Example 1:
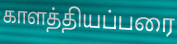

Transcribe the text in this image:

காளத்தியப்பரை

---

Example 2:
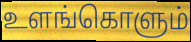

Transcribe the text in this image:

உளங்கொளும்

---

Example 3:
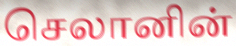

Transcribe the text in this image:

செலானின்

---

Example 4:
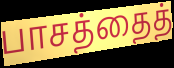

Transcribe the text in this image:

பாசத்தைத்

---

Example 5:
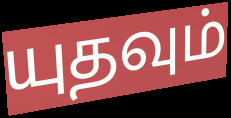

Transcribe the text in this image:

யுதவும்